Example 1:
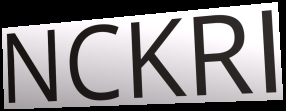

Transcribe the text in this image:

NCKRI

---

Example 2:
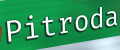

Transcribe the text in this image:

Pitroda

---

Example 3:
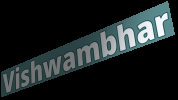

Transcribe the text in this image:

Vishwambhar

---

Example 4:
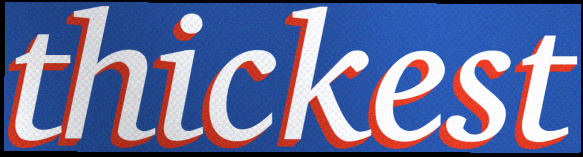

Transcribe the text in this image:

thickest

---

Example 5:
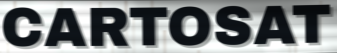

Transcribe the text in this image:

CARTOSAT